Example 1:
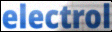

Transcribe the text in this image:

electrol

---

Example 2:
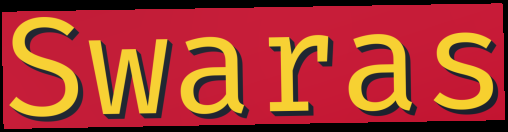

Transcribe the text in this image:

Swaras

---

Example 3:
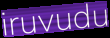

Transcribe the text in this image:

iruvudu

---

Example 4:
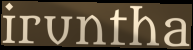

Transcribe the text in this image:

iruntha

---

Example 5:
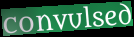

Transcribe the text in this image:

convulsed